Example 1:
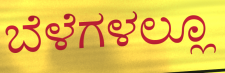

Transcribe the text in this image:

ಬೆಳೆಗಳಲ್ಲೂ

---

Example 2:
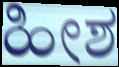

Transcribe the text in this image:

ಹೀಶ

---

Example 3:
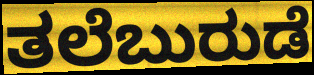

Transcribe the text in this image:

ತಲೆಬುರುಡೆ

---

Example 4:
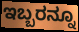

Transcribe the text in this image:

ಇಬ್ಬರನ್ನೂ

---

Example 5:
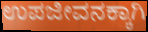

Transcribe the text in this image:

ಉಪಜೀವನಕ್ಕಾಗಿ